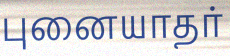
புனையாதர்